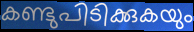
കണ്ടുപിടിക്കുകയും